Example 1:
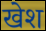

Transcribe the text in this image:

खेश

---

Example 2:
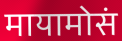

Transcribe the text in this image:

मायामोसं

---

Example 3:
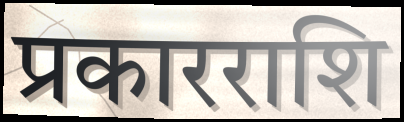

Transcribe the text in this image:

प्रकारराशि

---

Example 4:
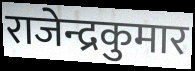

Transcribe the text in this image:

राजेन्द्रकुमार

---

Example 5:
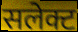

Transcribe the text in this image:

सलेक्ट